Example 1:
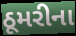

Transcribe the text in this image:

ઠૂમરીના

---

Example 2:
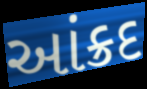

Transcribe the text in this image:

આંક્રદ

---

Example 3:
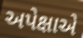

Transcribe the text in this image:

અપેક્ષાએ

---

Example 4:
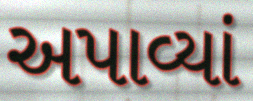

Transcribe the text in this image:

અપાવ્યાં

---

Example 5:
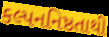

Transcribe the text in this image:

કલ્પનનિષ્ઠતાથી